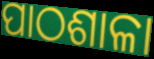
ପାଠଶାଳା